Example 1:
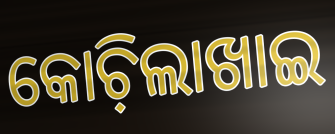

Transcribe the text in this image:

କୋଚ଼ିଲାଖାଇ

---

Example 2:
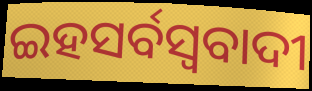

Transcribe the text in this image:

ଇହସର୍ବସ୍ୱବାଦୀ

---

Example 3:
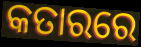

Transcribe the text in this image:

କତାରରେ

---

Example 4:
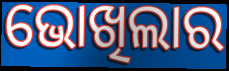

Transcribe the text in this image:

ଭୋଖିଲାର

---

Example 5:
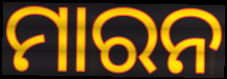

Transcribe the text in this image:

ମାରନ